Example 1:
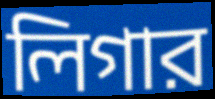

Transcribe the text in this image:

লিগার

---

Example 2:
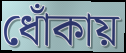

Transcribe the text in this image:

ধোঁকায়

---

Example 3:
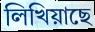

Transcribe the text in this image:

লিখিয়াছে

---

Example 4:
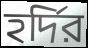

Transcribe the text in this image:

হর্দির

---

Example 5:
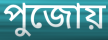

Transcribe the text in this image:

পুজোয়